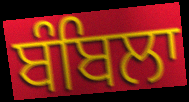
ਬੰਬਿਲਾ